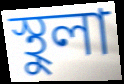
স্থুলা